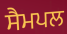
ਸੈਮਪਲ